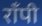
राँपी